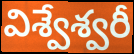
విశ్వేశ్వరీ